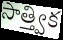
సాత్త్విక